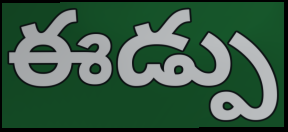
ఈడ్పు